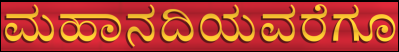
ಮಹಾನದಿಯವರೆಗೂ